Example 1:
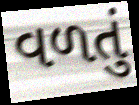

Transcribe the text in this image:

વળતું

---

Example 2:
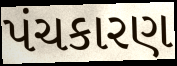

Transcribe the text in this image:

પંચકારણ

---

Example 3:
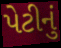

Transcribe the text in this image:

પેટીનું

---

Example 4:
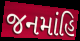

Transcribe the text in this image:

જનમાંહિ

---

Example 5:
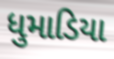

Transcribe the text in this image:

ધુમાડિયા